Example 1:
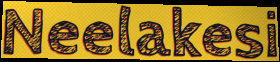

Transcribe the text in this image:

Neelakesi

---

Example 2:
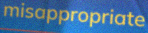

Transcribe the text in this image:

misappropriate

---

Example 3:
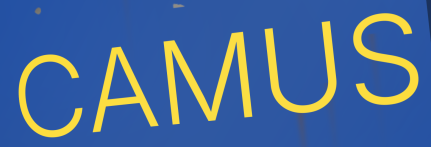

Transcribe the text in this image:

CAMUS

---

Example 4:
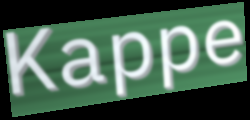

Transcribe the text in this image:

Kappe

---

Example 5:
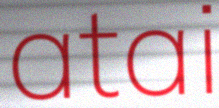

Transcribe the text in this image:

atai